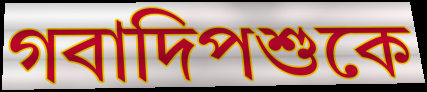
গবাদিপশুকে